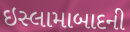
ઇસ્લામાબાદની